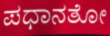
ಪಧಾನತೋ